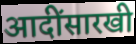
आदींसारखी